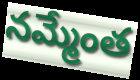
నమ్మేంత